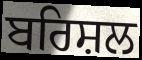
ਬਰਿਸ਼ਲ